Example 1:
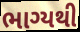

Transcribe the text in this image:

ભાગ્યથી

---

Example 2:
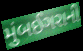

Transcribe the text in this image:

મુંબઈગરાની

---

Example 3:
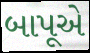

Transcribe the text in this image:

બાપૂએ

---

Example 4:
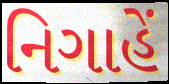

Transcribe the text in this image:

નિગાહેં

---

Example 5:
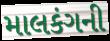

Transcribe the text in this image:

માલકંગની